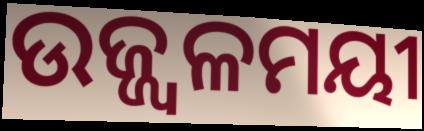
ଉଜ୍ଜ୍ୱଳମୟୀ